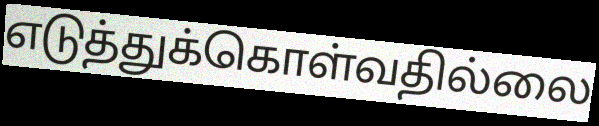
எடுத்துக்கொள்வதில்லை